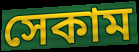
সেকাম